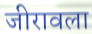
जीरावला